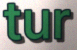
tur